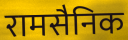
रामसैनिक